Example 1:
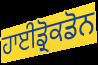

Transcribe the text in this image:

ਹਾਈਡ੍ਰੋਕਡੋਨ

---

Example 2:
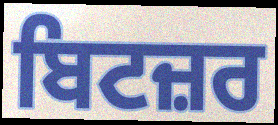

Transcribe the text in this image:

ਬਿਟਜ਼ਰ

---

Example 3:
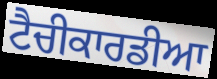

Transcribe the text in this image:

ਟੈਚੀਕਾਰਡੀਆ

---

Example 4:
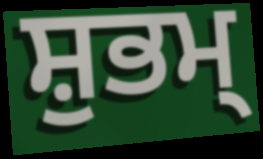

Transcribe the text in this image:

ਸ਼ੁਭਮ੍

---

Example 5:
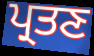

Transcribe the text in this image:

ਪ੍ਰਤਣ